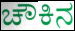
ಚೌಕಿನ